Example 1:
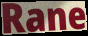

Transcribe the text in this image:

Rane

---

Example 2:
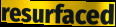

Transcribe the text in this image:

resurfaced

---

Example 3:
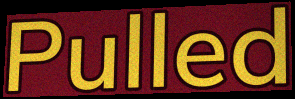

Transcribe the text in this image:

Pulled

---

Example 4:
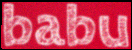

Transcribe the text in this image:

babu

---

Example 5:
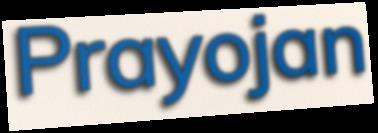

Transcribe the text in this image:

Prayojan